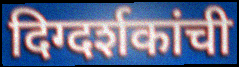
दिग्दर्शकांची